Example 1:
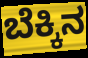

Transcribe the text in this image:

ಬೆಕ್ಕಿನ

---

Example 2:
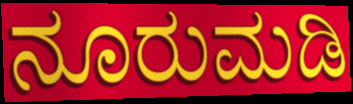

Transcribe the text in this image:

ನೂರುಮಡಿ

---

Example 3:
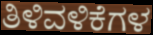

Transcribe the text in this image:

ತಿಳಿವಳಿಕೆಗಳ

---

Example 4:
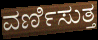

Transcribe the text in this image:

ವರ್ಣಿಸುತ್ತ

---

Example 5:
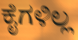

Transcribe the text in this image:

ಕೈಗಳಿಲ್ಲ